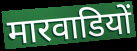
मारवाडियों